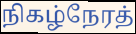
நிகழ்நேரத்